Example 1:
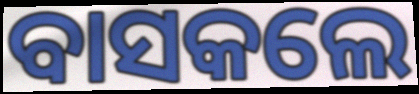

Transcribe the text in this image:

ବାସକଲେ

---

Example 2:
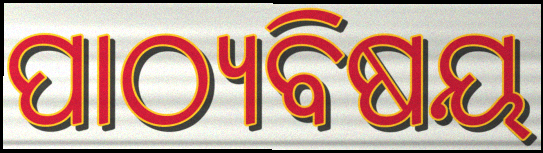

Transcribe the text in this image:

ପାଠ୍ୟବିଷୟ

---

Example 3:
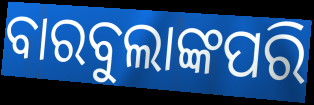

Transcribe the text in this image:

ବାରବୁଲାଙ୍କପରି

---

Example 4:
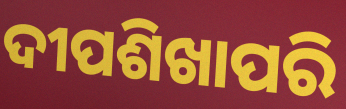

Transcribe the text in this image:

ଦୀପଶିଖାପରି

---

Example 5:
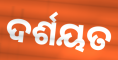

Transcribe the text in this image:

ଦର୍ଶୟତ